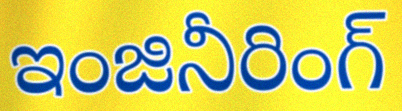
ఇంజినీరింగ్